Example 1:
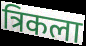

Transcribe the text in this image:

त्रिकला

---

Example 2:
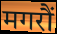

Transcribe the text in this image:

मगरौं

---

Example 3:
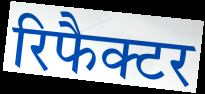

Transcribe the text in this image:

रिफैक्टर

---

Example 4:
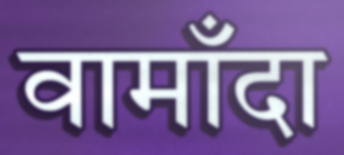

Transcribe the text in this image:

वामाँदा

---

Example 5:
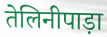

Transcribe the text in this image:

तेलिनीपाड़ा